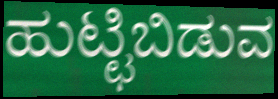
ಹುಟ್ಟಿಬಿಡುವ